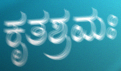
ಕೃತಶ್ರಮಃ